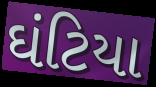
ઘંટિયા